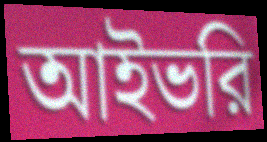
আইভরি